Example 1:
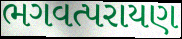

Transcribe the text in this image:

ભગવત્પરાયણ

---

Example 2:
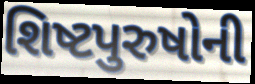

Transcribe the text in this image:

શિષ્ટપુરુષોની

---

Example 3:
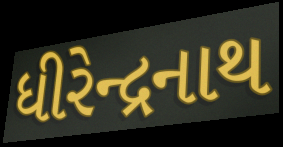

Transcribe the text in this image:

ધીરેન્દ્રનાથ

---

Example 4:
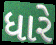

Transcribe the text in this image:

ધારે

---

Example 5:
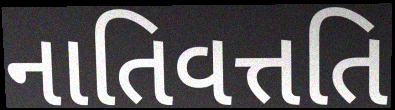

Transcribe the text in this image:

નાતિવત્તતિ